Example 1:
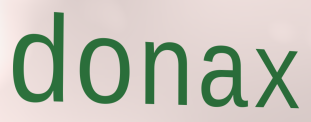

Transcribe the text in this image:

donax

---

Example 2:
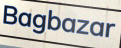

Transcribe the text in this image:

Bagbazar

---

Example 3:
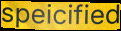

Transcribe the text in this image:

speicified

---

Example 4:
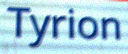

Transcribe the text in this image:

Tyrion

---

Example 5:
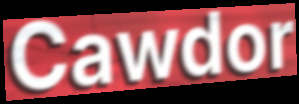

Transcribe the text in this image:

Cawdor